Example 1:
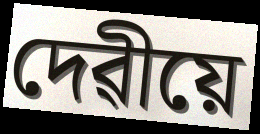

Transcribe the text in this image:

দেৱীয়ে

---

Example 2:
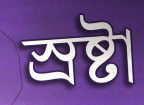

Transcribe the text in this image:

স্ৰষ্টা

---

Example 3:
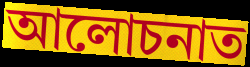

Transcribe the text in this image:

আলোচনাত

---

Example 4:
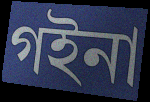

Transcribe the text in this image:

গইনা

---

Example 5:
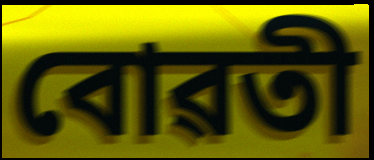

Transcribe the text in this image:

বোৱতী